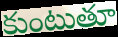
కుంటుతూ